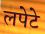
लपेटे